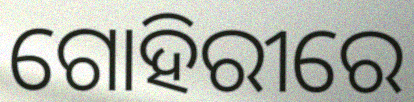
ଗୋହିରୀରେ